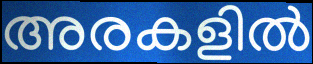
അരകളിൽ